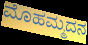
ಮೊಹಮ್ಮದನ